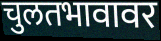
चुलतभावावर